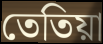
তেতিয়া